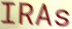
IRAs